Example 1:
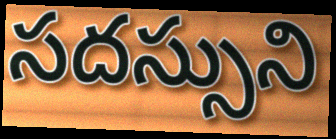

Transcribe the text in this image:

సదస్సుని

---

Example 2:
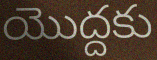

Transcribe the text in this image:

యొద్దకు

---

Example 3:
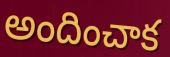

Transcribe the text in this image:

అందించాక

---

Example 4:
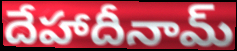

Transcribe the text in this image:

దేహాదీనామ్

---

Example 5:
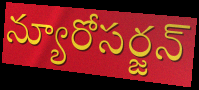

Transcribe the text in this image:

న్యూరోసర్జన్